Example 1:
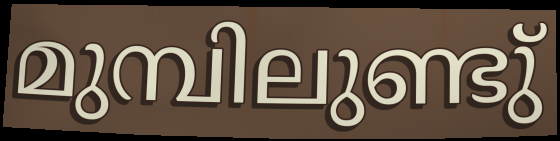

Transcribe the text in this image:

മുമ്പിലുണ്ടു്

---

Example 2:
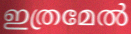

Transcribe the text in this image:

ഇത്രമേൽ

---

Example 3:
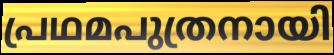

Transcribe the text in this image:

പ്രഥമപുത്രനായി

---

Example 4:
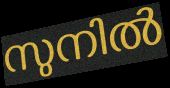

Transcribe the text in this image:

സുനിൽ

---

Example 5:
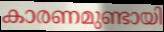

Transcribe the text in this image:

കാരണമുണ്ടായി